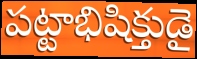
పట్టాభిషిక్తుడై